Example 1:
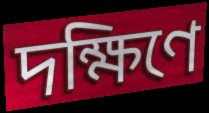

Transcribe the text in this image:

দক্ষিণে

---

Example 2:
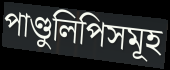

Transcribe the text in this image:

পাণ্ডুলিপিসমূহ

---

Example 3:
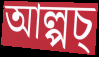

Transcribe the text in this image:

আল্পচ্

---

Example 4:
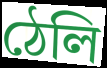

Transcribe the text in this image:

ঠেলি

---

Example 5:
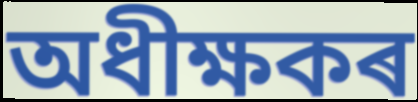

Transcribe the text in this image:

অধীক্ষকৰ